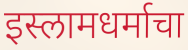
इस्लामधर्माचा